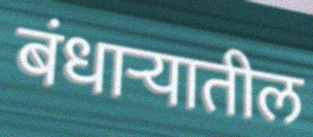
बंधाऱ्यातील